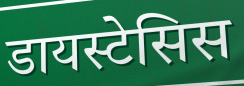
डायस्टेसिस